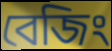
বেজিং